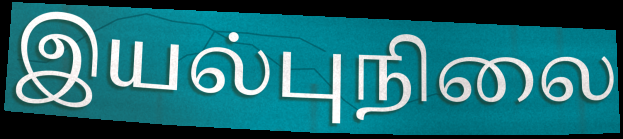
இயல்புநிலை